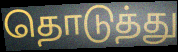
தொடுத்து